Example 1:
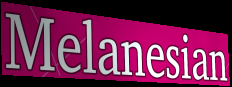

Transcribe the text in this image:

Melanesian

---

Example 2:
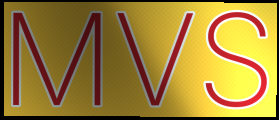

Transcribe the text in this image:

MVS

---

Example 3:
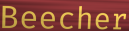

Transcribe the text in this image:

Beecher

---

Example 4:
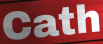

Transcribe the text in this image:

Cath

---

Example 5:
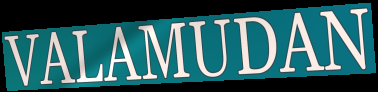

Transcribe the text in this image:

VALAMUDAN